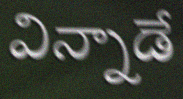
విన్నాడే